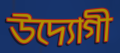
উদ্যোগী